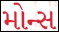
મોન્સ